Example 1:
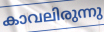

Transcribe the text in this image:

കാവലിരുന്നു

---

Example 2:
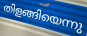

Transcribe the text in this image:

തിളങ്ങിയെന്നു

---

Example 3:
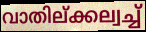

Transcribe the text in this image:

വാതില്ക്കല്വച്ച്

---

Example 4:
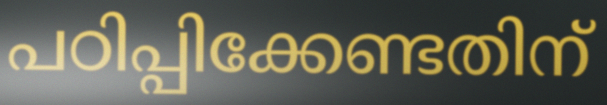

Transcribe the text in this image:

പഠിപ്പിക്കേണ്ടതിന്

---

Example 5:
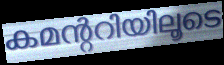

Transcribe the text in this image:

കമന്ററിയിലൂടെ